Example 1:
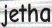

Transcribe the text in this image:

jetha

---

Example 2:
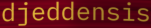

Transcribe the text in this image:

djeddensis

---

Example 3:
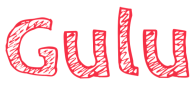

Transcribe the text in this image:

Gulu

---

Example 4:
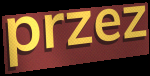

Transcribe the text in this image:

przez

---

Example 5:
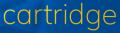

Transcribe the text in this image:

cartridge